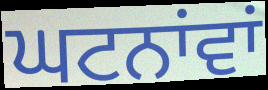
ਘਟਨਾਂਵਾਂ